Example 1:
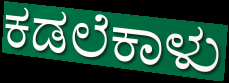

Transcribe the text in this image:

ಕಡಲೆಕಾಳು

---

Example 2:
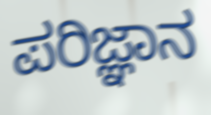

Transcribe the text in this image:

ಪರಿಜ್ಞಾನ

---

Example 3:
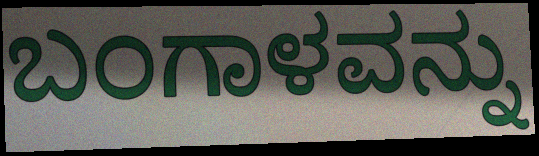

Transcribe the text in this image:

ಬಂಗಾಳವನ್ನು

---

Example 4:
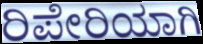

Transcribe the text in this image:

ರಿಪೇರಿಯಾಗಿ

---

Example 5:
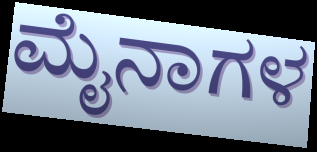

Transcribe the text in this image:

ಮೈನಾಗಳ